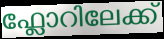
ഫ്ലോറിലേക്ക്